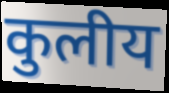
कुलीय